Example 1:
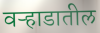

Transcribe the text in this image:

वऱ्हाडातील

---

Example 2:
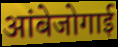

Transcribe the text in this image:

आंबेजोगाई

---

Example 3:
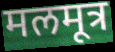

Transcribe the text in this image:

मलमूत्र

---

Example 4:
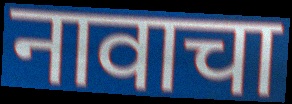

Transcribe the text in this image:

नावाचा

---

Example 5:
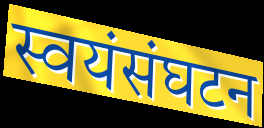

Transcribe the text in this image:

स्वयंसंघटन